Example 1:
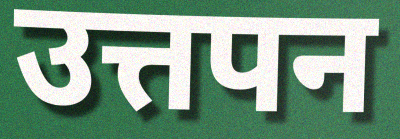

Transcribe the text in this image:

उत्तपन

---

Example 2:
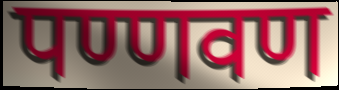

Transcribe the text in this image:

पण्णवण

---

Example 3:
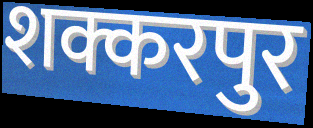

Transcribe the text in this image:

शक्करपुर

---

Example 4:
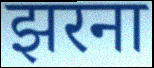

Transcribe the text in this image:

झरना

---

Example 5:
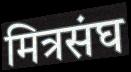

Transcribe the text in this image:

मित्रसंघ